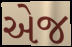
એજ